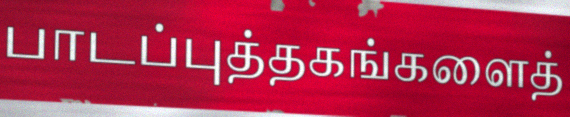
பாடப்புத்தகங்களைத்